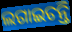
ଲଗାଇଚନ୍ତି